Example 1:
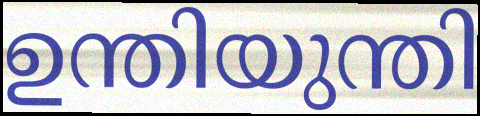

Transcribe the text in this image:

ഉന്തിയുന്തി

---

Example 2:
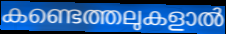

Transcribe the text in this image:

കണ്ടെത്തലുകളാൽ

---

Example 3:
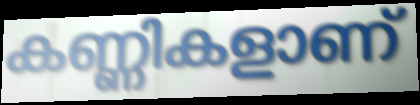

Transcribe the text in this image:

കണ്ണികളാണ്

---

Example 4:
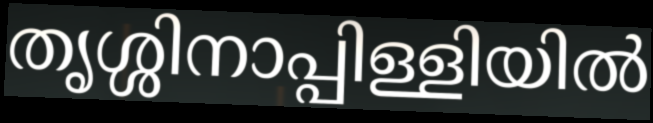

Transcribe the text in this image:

തൃശ്ശിനാപ്പിള്ളിയിൽ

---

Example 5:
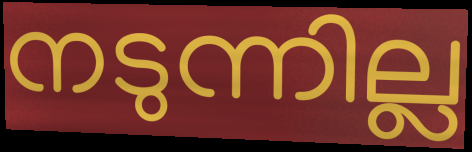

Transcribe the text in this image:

നടുന്നില്ല